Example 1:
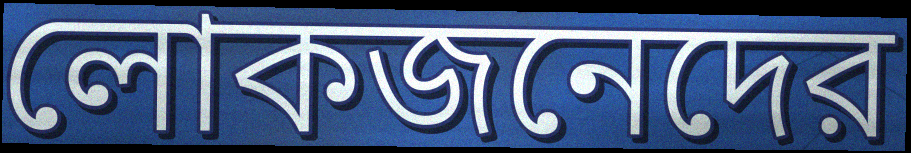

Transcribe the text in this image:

লোকজনেদের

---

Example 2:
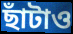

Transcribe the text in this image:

ছাঁটাও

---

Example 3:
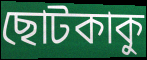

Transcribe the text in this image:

ছোটকাকু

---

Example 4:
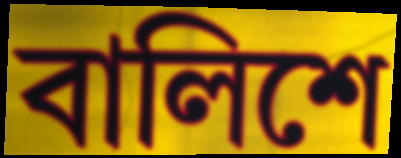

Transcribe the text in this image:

বালিশে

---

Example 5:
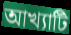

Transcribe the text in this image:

আখ্যাটি